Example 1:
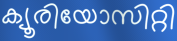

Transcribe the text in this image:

ക്യൂരിയോസിറ്റി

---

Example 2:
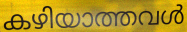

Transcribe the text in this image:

കഴിയാത്തവൾ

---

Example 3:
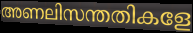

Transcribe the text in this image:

അണലിസന്തതികളേ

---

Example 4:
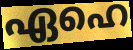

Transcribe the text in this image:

ഏഹെ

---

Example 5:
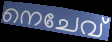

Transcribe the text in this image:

നെചേവ്